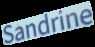
Sandrine